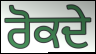
ਰੋਕਦੇ